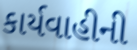
કાર્યવાહીની